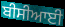
ਬੀਸੀਆਈ